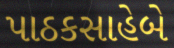
પાઠકસાહેબે